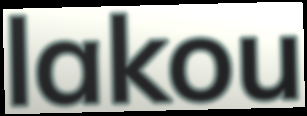
lakou